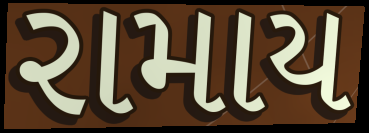
રામાય